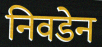
निवडेन